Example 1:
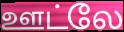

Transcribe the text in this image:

ஊட்லே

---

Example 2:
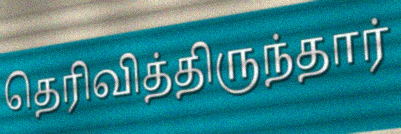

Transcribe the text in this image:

தெரிவித்திருந்தார்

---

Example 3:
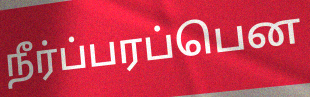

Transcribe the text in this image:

நீர்ப்பரப்பென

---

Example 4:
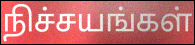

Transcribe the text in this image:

நிச்சயங்கள்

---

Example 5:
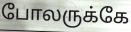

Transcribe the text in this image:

போலருக்கே